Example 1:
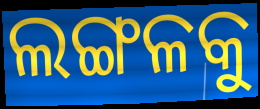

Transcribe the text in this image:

ଲଙ୍ଗଳକୁ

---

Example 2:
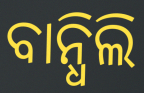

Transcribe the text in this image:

ବାନ୍ଧିଲି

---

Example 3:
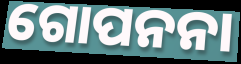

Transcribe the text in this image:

ଗୋପନନା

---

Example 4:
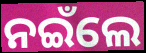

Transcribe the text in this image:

ନଇଁଲେ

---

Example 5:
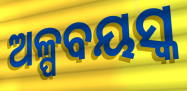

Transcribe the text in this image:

ଅଳ୍ପବୟସ୍କ